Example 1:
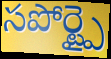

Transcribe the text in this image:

సపోర్ట్పై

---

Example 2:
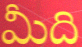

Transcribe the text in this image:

మీది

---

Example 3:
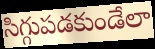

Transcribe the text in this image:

సిగ్గుపడకుండేలా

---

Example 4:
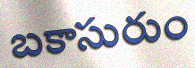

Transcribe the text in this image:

బకాసురుం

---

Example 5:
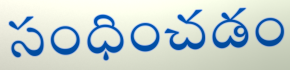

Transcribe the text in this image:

సంధించడం